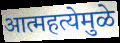
आत्महत्येमुळे